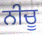
ਨੀਚੂ